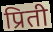
प्रिती